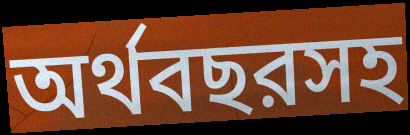
অর্থবছরসহ